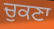
ਚੁਕਣਾ